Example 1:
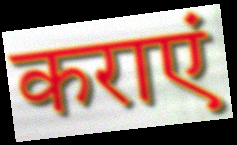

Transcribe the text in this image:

कराएं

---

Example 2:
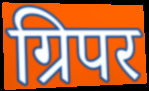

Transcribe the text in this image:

ग्रिपर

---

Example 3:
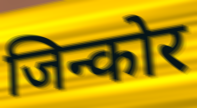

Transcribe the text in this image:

जिन्कोर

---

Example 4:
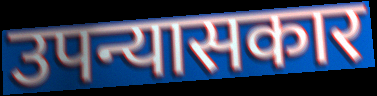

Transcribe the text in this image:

उपन्यासकार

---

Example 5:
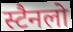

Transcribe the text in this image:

स्टैनलो